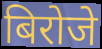
बिरोजे